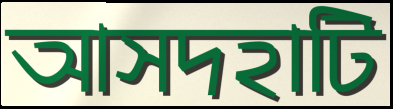
আসদহাটি